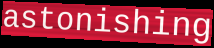
astonishing